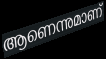
ആണെന്നുമാണ്